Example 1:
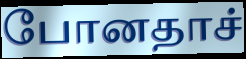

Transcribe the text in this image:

போனதாச்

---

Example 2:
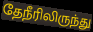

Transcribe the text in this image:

தேநீரிலிருந்து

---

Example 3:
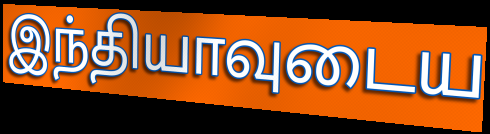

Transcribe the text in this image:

இந்தியாவுடைய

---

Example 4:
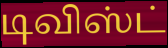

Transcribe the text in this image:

டிவிஸ்ட்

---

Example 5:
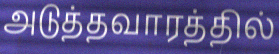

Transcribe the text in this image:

அடுத்தவாரத்தில்